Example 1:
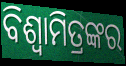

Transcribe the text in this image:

ବିଶ୍ବାମିତ୍ରଙ୍କର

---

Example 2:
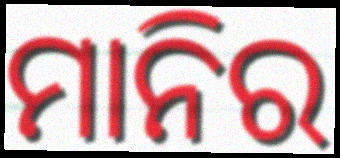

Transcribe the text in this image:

ମାନିର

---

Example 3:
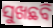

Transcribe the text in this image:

ସୁଖଛବି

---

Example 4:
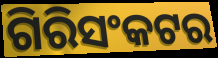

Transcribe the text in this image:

ଗିରିସଂକଟର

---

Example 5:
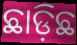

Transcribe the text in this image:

ଛାଡ଼ିଛ